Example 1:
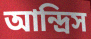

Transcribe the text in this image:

আন্দ্রিস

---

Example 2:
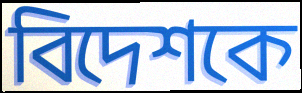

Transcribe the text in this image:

বিদেশকে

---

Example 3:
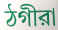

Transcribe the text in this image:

ঠগীরা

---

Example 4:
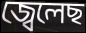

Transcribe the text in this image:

জ্বেলেছ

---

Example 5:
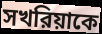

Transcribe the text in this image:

সখরিয়াকে